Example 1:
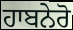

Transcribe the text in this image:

ਹਾਬਨੇਰੋ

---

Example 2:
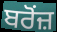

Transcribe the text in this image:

ਬਰੋਂਜ਼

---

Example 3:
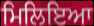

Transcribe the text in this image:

ਮਿਲਿਇਆ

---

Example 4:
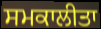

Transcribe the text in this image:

ਸਮਕਾਲੀਤਾ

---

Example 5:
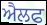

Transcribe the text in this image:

ਐਲਫ